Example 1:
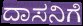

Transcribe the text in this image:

ದಾಸನಿಗೆ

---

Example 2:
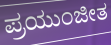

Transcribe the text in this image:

ಪ್ರಯುಂಜೀತ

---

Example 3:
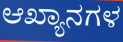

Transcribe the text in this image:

ಆಖ್ಯಾನಗಳ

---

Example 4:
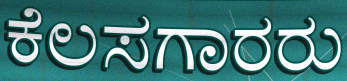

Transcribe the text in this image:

ಕೆಲಸಗಾರರು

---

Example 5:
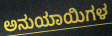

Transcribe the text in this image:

ಅನುಯಾಯಿಗಳ